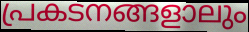
പ്രകടനങ്ങളാലും